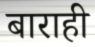
बाराही